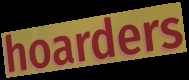
hoarders